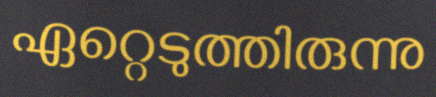
ഏറ്റെടുത്തിരുന്നു